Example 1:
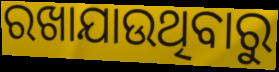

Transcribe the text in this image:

ରଖାଯାଉଥିବାରୁ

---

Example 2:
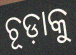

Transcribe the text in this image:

ଚୂଡ଼ାକୁ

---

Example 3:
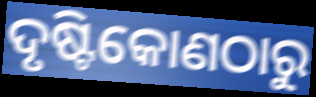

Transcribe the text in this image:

ଦୃଷ୍ଟିକୋଣଠାରୁ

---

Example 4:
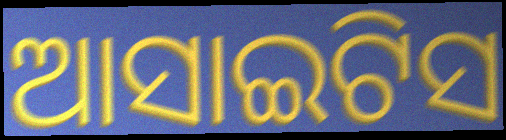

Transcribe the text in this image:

ଆସାଇଟିସ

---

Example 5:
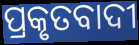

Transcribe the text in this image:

ପ୍ରକୃତବାଦୀ